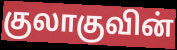
குலாகுவின்